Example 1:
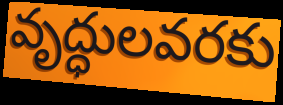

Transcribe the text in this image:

వృద్ధులవరకు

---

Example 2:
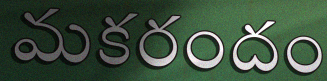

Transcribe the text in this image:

మకరందం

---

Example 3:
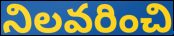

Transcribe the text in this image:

నిలవరించి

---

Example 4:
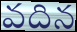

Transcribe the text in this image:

వదిన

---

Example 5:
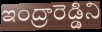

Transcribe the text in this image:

ఇంద్రారెడ్డిని